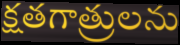
క్షతగాత్రులను